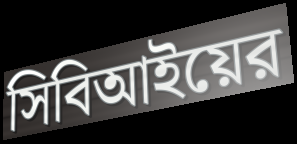
সিবিআইয়ের